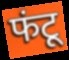
फंटू